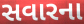
સવારના